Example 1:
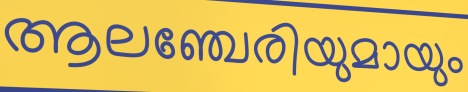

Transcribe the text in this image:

ആലഞ്ചേരിയുമായും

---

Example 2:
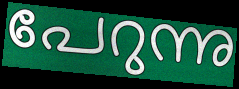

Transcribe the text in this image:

പേറുന്നു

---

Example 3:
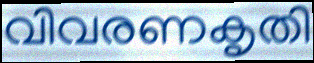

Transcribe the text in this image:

വിവരണകൃതി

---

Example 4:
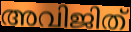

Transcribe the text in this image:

അവിജിത്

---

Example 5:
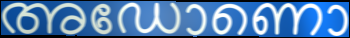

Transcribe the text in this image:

അഡോണൊ